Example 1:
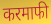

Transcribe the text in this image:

करमाफी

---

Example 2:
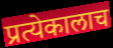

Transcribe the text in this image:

प्रत्येकालाच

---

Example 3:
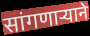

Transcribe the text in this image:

सांगणार्‍याने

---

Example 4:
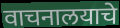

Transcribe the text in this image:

वाचनालयाचे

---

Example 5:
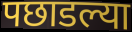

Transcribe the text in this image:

पछाडल्या